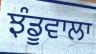
ਝੰਡੂਵਾਲਾ